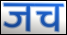
जच